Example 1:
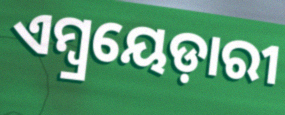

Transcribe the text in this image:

ଏମ୍ୱ୍ରୟେଡ଼ାରୀ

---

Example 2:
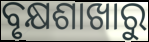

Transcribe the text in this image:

ବୃକ୍ଷଶାଖାରୁ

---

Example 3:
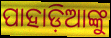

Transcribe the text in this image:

ପାହାଡ଼ିଆଙ୍କୁ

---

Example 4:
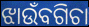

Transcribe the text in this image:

ଝାଉଁବଗିଚା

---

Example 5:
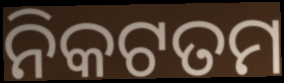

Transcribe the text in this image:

ନିକଟତମ